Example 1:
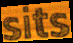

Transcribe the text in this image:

sits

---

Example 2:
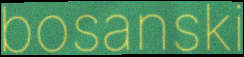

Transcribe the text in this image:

bosanski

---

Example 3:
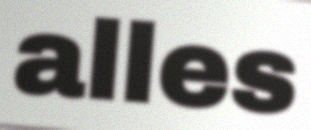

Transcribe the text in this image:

alles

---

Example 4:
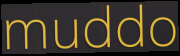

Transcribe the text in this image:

muddo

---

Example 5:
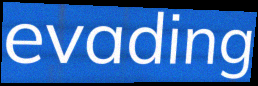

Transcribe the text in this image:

evading